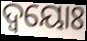
ଦ୍ବୟୋଃ